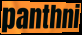
panthni